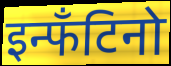
इन्फँटिनो